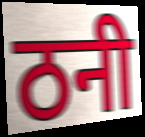
ठनी